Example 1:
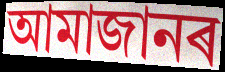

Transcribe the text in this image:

আমাজানৰ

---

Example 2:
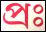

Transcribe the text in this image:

প্ৰঃ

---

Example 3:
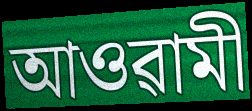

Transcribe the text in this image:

আওৱামী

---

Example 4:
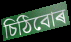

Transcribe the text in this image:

চিঠিবোৰ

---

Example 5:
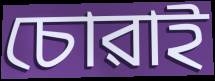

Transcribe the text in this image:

চোৱাই